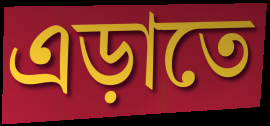
এড়াতে